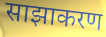
साझाकरण